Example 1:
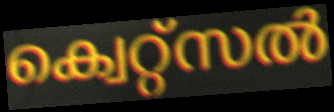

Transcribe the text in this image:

ക്വെറ്റ്സൽ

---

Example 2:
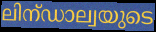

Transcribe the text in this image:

ലിന്ഡാല്വയുടെ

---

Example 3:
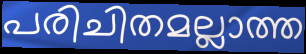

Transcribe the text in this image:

പരിചിതമല്ലാത്ത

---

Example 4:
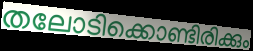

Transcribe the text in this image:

തലോടിക്കൊണ്ടിരിക്കും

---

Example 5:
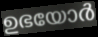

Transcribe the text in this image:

ഉഭയോർ